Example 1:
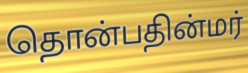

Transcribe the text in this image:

தொன்பதின்மர்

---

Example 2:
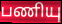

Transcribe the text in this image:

பணியு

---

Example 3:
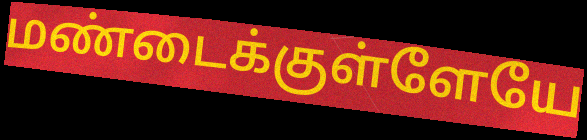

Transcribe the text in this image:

மண்டைக்குள்ளேயே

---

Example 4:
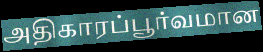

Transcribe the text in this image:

அதிகாரப்பூர்வமான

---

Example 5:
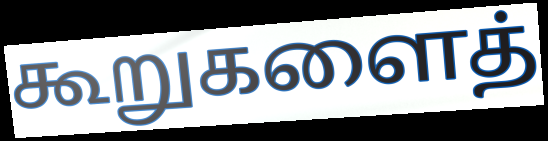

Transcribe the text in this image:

கூறுகளைத்